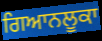
ਗਿਆਨਲੂਕਾ